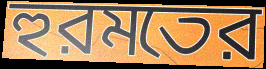
হুরমতের